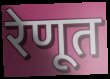
रेणूत